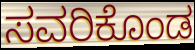
ಸವರಿಕೊಂಡ